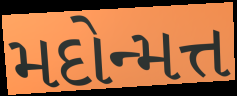
મદોન્મત્ત